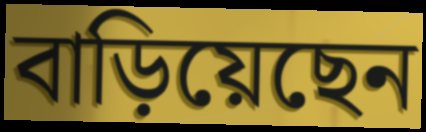
বাড়িয়েছেন